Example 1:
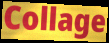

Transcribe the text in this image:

Collage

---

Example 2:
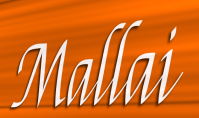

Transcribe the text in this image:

Mallai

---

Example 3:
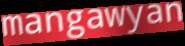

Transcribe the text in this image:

mangawyan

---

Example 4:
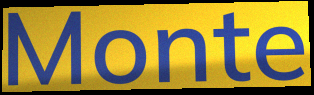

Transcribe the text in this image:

Monte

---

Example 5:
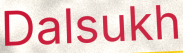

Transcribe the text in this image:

Dalsukh